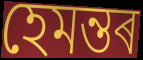
হেমন্তৰ